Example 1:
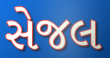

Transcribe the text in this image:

સેજલ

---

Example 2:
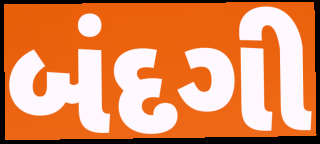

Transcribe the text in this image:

બંદગી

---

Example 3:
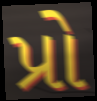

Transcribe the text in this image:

પ્રો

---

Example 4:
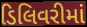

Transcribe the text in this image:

ડિલિવરીમાં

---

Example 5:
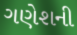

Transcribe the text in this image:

ગણેશની